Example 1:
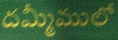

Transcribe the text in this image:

దమ్మీములో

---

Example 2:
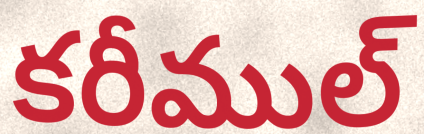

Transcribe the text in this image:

కరీముల్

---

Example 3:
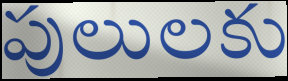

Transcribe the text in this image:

పులులకు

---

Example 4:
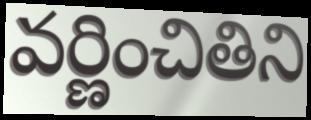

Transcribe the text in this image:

వర్ణించితిని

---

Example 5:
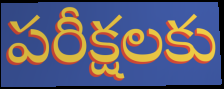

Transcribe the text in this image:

పరీక్షలకు